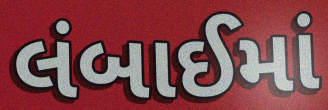
લંબાઈમાં